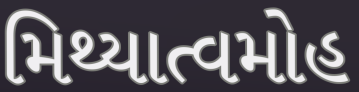
મિથ્યાત્વમોહ